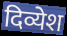
दिव्येश